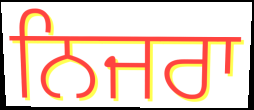
ਨਿਜਰਾ